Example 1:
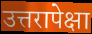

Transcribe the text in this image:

उत्तरापेक्षा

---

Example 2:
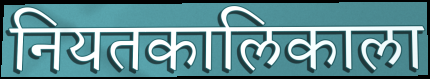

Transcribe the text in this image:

नियतकालिकाला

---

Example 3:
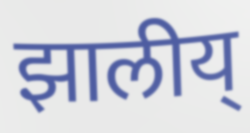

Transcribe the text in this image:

झालीय्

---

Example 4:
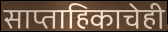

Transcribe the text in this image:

साप्ताहिकाचेही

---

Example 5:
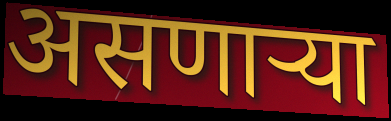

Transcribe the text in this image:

असणाऱ्या